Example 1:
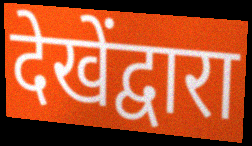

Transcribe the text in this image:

देखेंद्वारा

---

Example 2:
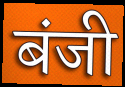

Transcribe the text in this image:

बंजी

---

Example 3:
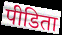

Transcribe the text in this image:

पीडिता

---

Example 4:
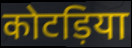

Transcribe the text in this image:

कोटड़िया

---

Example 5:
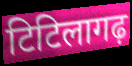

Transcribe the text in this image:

टिटिलागढ़